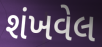
શંખવેલ